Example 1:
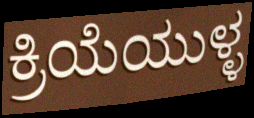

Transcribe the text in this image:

ಕ್ರಿಯೆಯುಳ್ಳ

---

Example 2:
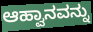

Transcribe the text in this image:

ಆಹ್ವಾನವನ್ನು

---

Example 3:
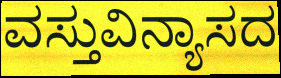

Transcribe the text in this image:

ವಸ್ತುವಿನ್ಯಾಸದ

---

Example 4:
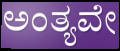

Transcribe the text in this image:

ಅಂತ್ಯವೇ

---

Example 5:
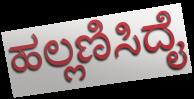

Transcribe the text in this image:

ಹಲ್ಲಣಿಸಿದೈ